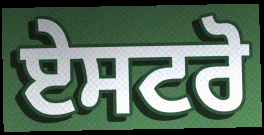
ਏਸਟਰੋ